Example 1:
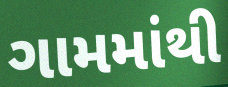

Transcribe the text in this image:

ગામમાંથી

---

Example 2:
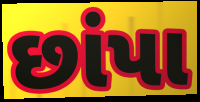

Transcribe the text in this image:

છાંપા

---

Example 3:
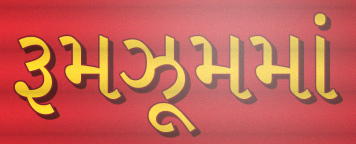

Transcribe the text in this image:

રૂમઝૂમમાં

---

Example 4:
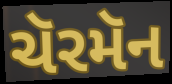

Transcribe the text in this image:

ચૅરમૅન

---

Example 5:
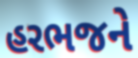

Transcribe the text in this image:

હરભજને